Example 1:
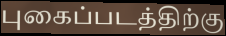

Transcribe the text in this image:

புகைப்படத்திற்கு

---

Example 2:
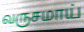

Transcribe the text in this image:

வருசமாய்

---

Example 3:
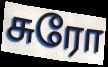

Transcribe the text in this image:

சுரோ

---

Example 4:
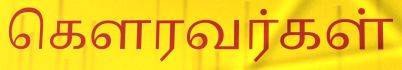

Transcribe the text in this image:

கௌரவர்கள்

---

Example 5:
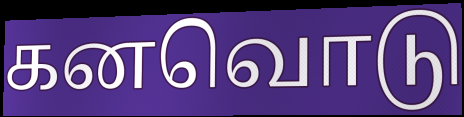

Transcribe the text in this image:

கனவொடு